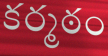
కర్మఠం